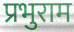
प्रभुराम